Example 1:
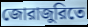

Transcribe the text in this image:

জোরাজুরিতে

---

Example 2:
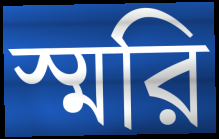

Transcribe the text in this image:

স্মরি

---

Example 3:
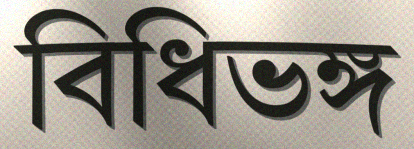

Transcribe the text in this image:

বিধিভঙ্গ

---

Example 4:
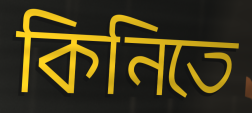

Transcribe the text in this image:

কিনিতে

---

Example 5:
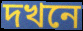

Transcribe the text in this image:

দখনে